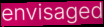
envisaged